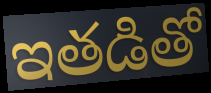
ఇతడితో